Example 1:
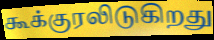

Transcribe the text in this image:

கூக்குரலிடுகிறது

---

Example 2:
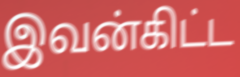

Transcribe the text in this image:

இவன்கிட்ட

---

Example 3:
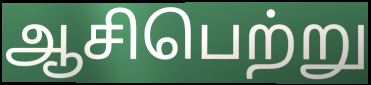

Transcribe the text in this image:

ஆசிபெற்று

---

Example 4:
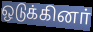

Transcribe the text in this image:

ஒடுக்கினர்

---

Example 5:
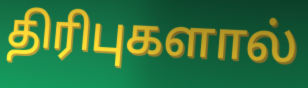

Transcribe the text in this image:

திரிபுகளால்